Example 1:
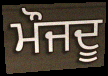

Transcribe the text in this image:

ਮੌਜਦੂ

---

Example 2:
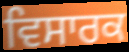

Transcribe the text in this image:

ਵਿਸਾਰਕ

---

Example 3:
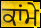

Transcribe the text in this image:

ਕਾਂਮੇ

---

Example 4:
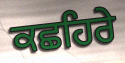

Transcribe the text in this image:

ਕਛਹਿਰੇ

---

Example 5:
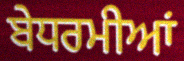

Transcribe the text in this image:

ਬੇਧਰਮੀਆਂ